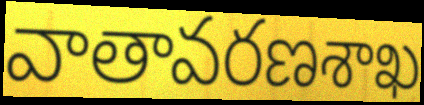
వాతావరణశాఖ